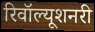
रिवॉल्यूशनरी